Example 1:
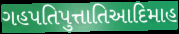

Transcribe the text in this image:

ગહપતિપુત્તાતિઆદિમાહ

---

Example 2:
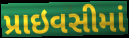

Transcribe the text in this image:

પ્રાઇવસીમાં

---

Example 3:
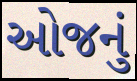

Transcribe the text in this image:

ઓજનું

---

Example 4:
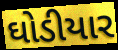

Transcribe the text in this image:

ઘોડીયાર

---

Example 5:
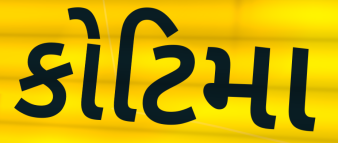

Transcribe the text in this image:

કોટિમા